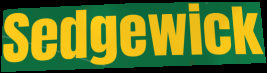
Sedgewick